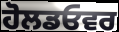
ਹੋਲਡਓਵਰ